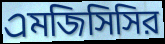
এমজিসিসির